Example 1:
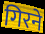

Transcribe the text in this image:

गिरने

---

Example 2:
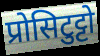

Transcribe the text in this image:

प्रोसिटुट्टो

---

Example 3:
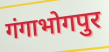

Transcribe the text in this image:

गंगाभोगपुर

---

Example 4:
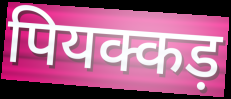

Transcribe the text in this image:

पियक्कड़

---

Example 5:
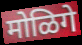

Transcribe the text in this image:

मोळिगे